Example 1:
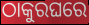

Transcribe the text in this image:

ଠାକୁରଘରେ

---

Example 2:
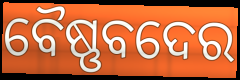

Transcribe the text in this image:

ବୈଷ୍ଣବଦେର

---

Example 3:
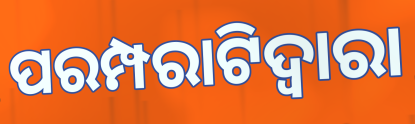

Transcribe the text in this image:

ପରମ୍ପରାଟିଦ୍ୱାରା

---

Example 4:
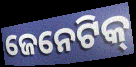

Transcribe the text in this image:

ଜେନେଟିକ୍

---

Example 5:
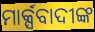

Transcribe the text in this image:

ମାର୍କ୍ସବାଦୀଙ୍କ